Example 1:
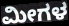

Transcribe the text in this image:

ಮೀಗಳ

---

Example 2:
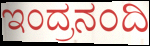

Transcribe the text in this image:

ಇಂದ್ರನಂದಿ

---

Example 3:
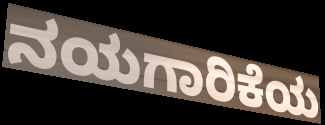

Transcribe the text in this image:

ನಯಗಾರಿಕೆಯ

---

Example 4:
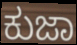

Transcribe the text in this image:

ಕುಜಾ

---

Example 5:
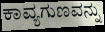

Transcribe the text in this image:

ಕಾವ್ಯಗುಣವನ್ನು